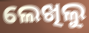
ଲେଖିଲୁ